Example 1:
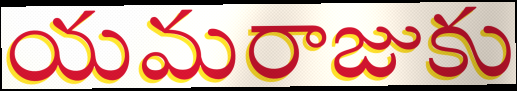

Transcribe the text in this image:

యమరాజుకు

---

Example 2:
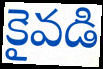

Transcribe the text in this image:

కైవడి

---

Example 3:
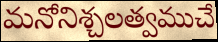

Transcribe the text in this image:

మనోనిశ్చలత్వముచే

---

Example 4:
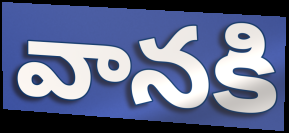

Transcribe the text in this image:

వానకి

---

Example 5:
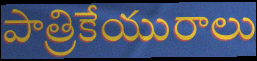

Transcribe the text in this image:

పాత్రికేయురాలు